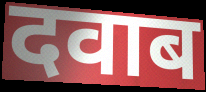
दवाब